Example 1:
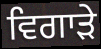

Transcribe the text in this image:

ਵਿਗਾੜੇ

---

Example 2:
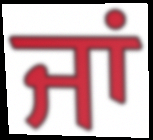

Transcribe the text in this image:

ਜਾਂ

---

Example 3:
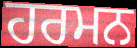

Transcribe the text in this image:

ਹਰਮਨ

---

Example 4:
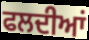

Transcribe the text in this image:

ਫਲਦੀਆਂ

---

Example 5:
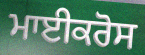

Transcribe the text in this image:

ਮਾਈਕਰੋਸ